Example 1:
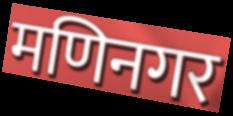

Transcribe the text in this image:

मणिनगर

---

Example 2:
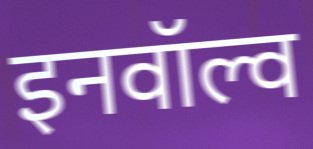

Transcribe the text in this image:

इनवॉल्व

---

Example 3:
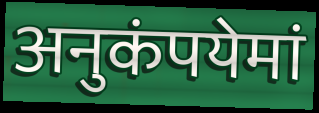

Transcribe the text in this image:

अनुकंपयेमां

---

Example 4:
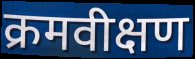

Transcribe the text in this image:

क्रमवीक्षण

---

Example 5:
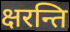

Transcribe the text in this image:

क्षरन्ति